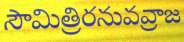
సౌమిత్రిరనువవ్రాజ